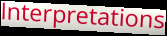
Interpretations